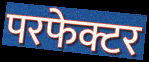
परफेक्टर